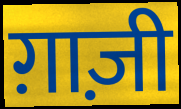
ग़ाज़ी